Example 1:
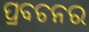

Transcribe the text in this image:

ପ୍ରବଚନର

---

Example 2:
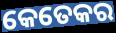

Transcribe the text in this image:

କେତେକର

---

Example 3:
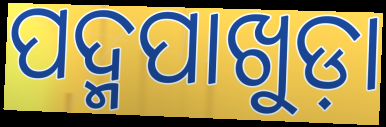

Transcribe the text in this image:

ପଦ୍ମପାଖୁଡ଼ା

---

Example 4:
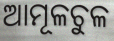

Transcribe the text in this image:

ଆମୂଳଚୁଳ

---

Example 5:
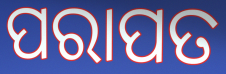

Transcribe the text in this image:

ପରାପତ